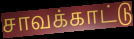
சாவக்காட்டு